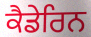
ਕੈਡੇਰਿਨ